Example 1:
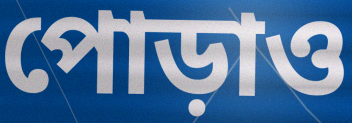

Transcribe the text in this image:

পোড়াও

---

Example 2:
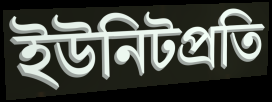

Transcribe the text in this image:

ইউনিটপ্রতি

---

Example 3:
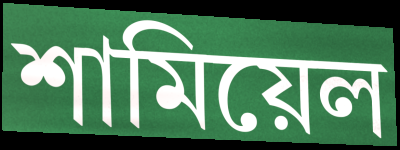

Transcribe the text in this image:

শামিয়েল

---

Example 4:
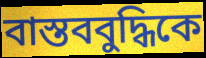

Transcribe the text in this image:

বাস্তববুদ্ধিকে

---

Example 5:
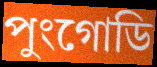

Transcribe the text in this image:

পুংগোডি